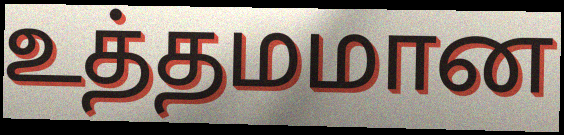
உத்தமமான